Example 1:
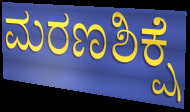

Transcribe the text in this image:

ಮರಣಶಿಕ್ಷೆ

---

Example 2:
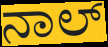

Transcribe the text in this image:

ನಾಲ್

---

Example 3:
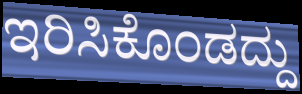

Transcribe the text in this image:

ಇರಿಸಿಕೊಂಡದ್ದು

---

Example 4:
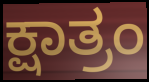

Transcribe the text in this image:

ಕ್ಷಾತ್ರಂ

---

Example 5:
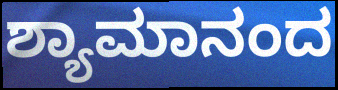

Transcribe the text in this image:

ಶ್ಯಾಮಾನಂದ